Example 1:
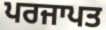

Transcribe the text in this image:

ਪਰਜਾਪਤ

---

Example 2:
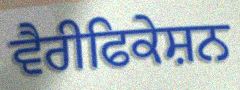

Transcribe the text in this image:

ਵੈਰੀਫਿਕੇਸ਼ਨ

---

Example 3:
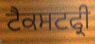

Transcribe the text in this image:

ਟੈਕਸਟਫ੍ਰੀ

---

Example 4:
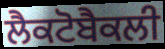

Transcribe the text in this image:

ਲੈਕਟੋਬੈਕਲੀ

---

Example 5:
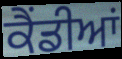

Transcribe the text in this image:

ਕੈਂਡੀਆਂ